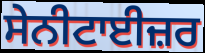
ਸੇਨੀਟਾਈਜ਼ਰ